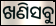
ଖଣିସବୁ